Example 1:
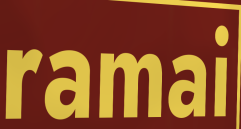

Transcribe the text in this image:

ramai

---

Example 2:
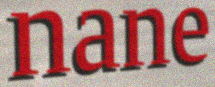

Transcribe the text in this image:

nane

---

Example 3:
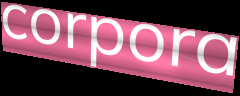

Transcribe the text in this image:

corpora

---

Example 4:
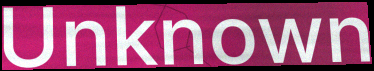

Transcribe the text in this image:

Unknown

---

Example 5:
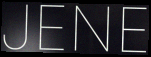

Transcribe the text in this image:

JENE